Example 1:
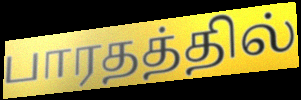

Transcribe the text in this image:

பாரதத்தில்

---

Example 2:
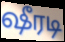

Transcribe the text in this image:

ஷீரடி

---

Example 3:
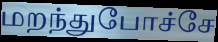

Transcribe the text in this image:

மறந்துபோச்சே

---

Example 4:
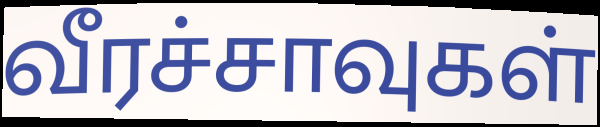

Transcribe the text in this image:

வீரச்சாவுகள்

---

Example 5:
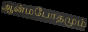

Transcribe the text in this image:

ஆன்மபோதமும்